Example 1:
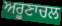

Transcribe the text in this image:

ਅਰੂਣਾਚਲ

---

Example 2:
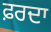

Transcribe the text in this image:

ਫ਼ਰਦਾ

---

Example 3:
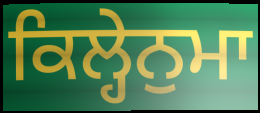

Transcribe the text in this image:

ਕਿਲ੍ਹੇਨੁਮਾ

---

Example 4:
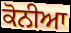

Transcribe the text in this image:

ਕੋਨੀਆ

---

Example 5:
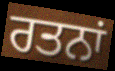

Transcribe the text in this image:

ਰਤਨਾਂ